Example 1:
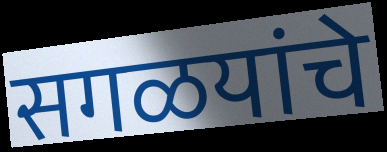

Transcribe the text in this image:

सगळयांचे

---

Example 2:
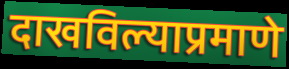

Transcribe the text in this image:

दाखविल्याप्रमाणे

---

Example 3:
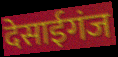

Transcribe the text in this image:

देसाईगंज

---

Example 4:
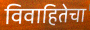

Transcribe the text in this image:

विवाहितेचा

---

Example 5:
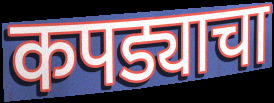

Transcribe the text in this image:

कपड्याचा